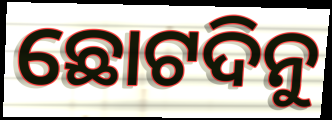
ଛୋଟଦିନୁ